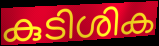
കുടിശിക